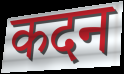
कदन